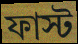
ফাস্ট